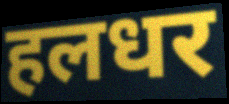
हलधर